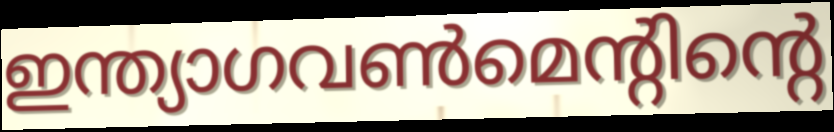
ഇന്ത്യാഗവൺമെന്റിന്റെ